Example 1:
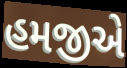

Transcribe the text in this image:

હમજીએ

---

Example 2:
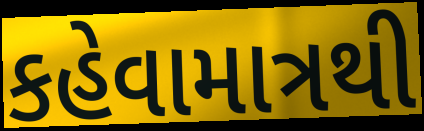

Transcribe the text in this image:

કહેવામાત્રથી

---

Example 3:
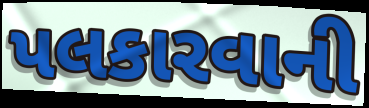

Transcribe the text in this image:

પલકારવાની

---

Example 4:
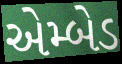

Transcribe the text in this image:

એમ્બેડ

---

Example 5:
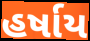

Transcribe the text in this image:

હર્ષાય